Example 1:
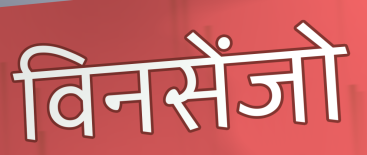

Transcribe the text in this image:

विनसेंजो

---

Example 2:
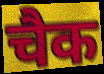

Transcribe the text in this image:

चैक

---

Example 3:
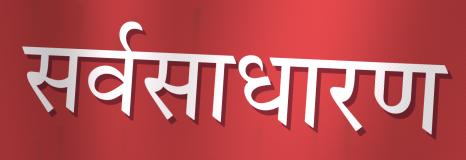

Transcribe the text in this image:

सर्वसाधारण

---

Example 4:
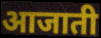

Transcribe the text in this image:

आजाती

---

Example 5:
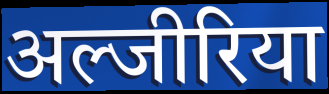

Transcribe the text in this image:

अल्जीरिया